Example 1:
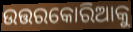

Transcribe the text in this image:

ଉତ୍ତରକୋରିଆକୁ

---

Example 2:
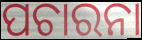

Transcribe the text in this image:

ପଚାରନା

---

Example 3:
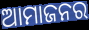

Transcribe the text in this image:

ଆମାଜନର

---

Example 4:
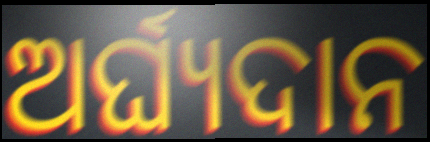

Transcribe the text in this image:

ଅର୍ଘ୍ୟଦାନ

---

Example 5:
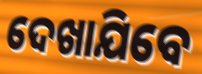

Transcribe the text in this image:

ଦେଖାଯିବେ